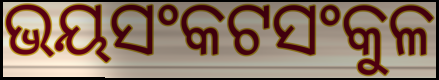
ଭୟସଂକଟସଂକୁଳ